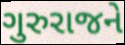
ગુરુરાજને